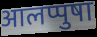
आलप्पुषा